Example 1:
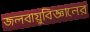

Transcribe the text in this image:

জলবায়ুবিজ্ঞানের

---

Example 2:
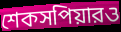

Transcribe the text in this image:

শেকসপিয়ারও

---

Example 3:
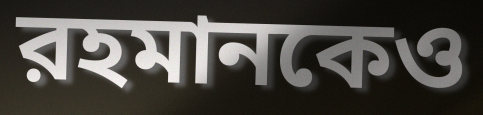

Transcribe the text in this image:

রহমানকেও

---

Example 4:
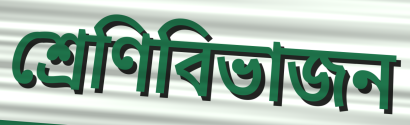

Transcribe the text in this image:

শ্রেণিবিভাজন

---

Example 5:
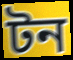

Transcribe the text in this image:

টন